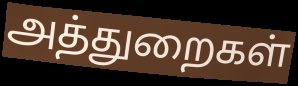
அத்துறைகள்